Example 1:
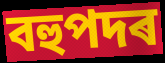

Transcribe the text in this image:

বহুপদৰ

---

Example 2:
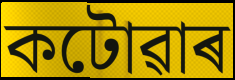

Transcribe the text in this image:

কটোৱাৰ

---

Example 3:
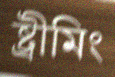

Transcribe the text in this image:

ষ্ট্ৰীমিং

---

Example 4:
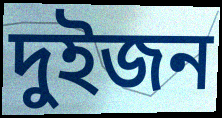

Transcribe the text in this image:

দুইজন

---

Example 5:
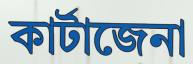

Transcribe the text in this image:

কাৰ্টাজেনা